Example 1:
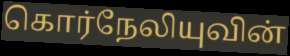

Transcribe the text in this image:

கொர்நேலியுவின்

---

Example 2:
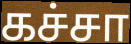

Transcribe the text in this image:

கச்சா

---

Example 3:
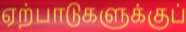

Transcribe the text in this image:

ஏற்பாடுகளுக்குப்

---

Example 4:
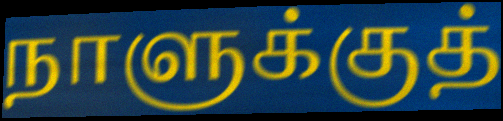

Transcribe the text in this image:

நாளுக்குத்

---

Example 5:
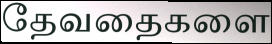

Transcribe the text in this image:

தேவதைகளை